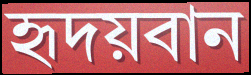
হৃদয়বান